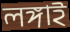
লঙ্গাই